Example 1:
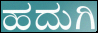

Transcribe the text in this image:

ಹದುಗಿ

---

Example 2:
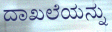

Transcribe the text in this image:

ದಾಖಲೆಯನ್ನು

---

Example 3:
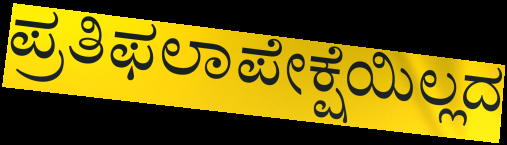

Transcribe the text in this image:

ಪ್ರತಿಫಲಾಪೇಕ್ಷೆಯಿಲ್ಲದ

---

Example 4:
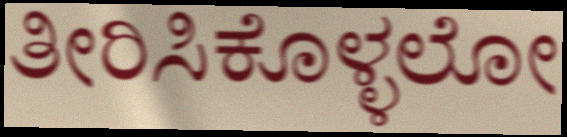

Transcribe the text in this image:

ತೀರಿಸಿಕೊಳ್ಳಲೋ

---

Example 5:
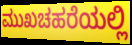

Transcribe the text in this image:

ಮುಖಚಹರೆಯಲ್ಲಿ